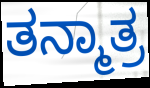
ತನ್ಮಾತ್ರ